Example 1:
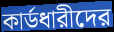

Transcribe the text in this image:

কার্ডধারীদের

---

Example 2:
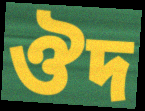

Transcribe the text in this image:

ঔদ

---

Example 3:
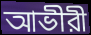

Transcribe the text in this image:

আভীরী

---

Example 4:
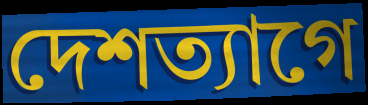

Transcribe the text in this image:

দেশত্যাগে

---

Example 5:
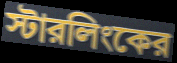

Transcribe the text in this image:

স্টারলিংকের